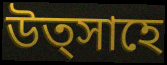
উত্সাহে